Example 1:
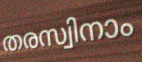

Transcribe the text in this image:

തരസ്വിനാം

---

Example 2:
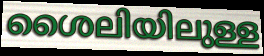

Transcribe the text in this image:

ശൈലിയിലുള്ള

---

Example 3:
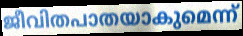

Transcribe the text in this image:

ജീവിതപാതയാകുമെന്ന്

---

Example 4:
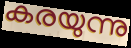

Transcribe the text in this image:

കരയുന്നു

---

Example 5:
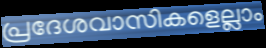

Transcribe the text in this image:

പ്രദേശവാസികളെല്ലാം